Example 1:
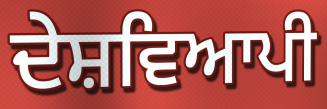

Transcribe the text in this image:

ਦੇਸ਼ਵਿਆਪੀ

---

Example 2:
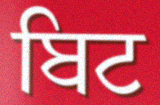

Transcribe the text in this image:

ਬਿਟ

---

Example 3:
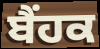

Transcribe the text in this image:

ਬੈਂਹਕ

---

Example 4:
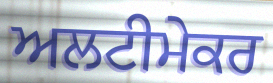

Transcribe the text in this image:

ਅਲਟੀਮੇਕਰ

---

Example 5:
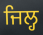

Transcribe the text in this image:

ਜਿਲ੍ਹ